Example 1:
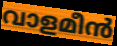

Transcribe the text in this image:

വാളമീൻ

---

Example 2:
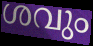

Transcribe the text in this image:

ശവും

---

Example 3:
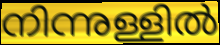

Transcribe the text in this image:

നിന്നുള്ളിൽ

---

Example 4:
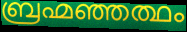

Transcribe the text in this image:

ബ്രഹ്മഞ്ഞത്ഥം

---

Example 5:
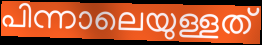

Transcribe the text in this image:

പിന്നാലെയുള്ളത്